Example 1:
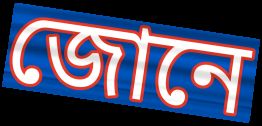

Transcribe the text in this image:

জোনে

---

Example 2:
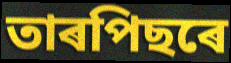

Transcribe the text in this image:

তাৰপিছৰে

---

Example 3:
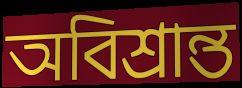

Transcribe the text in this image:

অবিশ্ৰান্ত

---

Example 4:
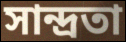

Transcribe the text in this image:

সান্দ্ৰতা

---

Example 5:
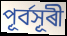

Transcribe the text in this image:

পূৰ্বসূৰী